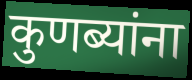
कुणब्यांना